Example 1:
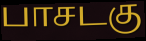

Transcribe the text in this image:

பாசடகு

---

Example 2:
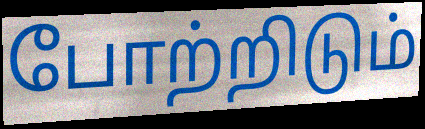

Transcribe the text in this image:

போற்றிடும்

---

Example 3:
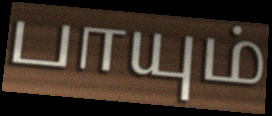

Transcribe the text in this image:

பாயும்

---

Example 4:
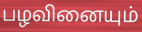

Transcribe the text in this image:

பழவினையும்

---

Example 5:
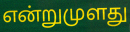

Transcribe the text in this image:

என்றுமுளது